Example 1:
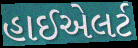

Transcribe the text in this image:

હાઈએલર્ટ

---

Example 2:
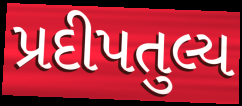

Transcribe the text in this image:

પ્રદીપતુલ્ય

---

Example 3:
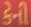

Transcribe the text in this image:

કેની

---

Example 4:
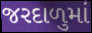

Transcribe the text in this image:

જરદાળુમાં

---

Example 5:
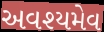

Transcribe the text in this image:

અવશ્યમેવ